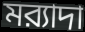
মর‍্যাদা